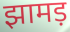
झामड़